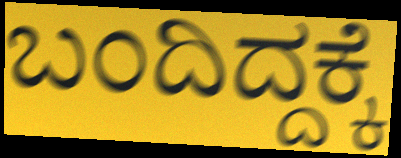
ಬಂದಿದ್ದಕ್ಕೆ